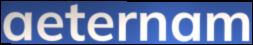
aeternam